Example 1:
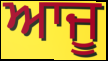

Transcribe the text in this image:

ਆਜੂ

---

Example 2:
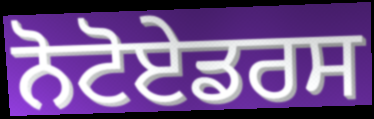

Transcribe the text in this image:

ਨੋਟੋਏਡਰਸ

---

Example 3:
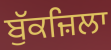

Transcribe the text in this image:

ਬੁੱਕਜ਼ਿਲਾ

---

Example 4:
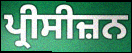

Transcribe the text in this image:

ਪ੍ਰੀਸੀਜ਼ਨ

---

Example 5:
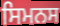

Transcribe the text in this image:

ਸਿਮਨਸ